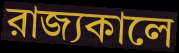
রাজ্যকালে